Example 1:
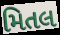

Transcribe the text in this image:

મિતલ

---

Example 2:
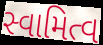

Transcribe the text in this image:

સ્વામિત્વ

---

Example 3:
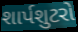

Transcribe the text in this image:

શાર્પશુટરો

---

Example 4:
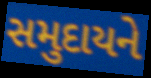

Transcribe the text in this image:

સમુદાયને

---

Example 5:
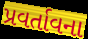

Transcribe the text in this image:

પ્રવર્તાવના